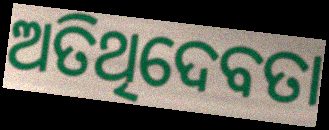
ଅତିଥିଦେବତା